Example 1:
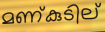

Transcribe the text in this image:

മണ്കുടില്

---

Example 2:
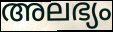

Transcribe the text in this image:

അലഭ്യം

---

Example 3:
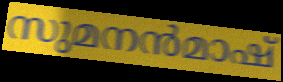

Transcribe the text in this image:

സുമനൻമാഷ്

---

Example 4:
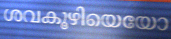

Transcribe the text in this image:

ശവകൂഴിയെയോ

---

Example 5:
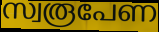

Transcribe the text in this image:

സ്വരൂപേണ